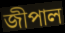
জীপাল